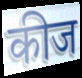
कीज